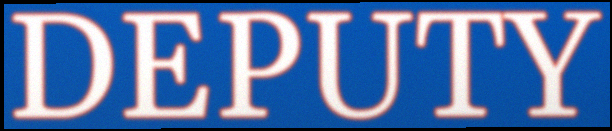
DEPUTY